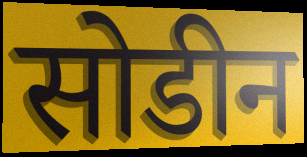
सोडीन